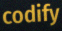
codify